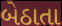
બેઠાતા